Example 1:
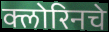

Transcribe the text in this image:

क्लोरिनचे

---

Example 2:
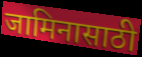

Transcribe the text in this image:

जामिनासाठी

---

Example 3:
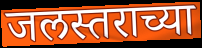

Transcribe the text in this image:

जलस्तराच्या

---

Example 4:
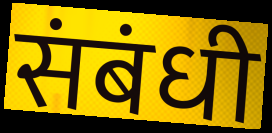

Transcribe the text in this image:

संबंधी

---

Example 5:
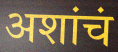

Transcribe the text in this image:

अशांचं